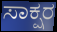
ಸಾಕ್ಷರ